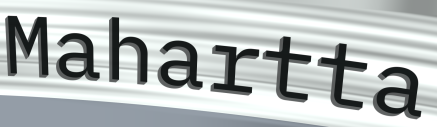
Mahartta